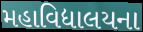
મહાવિદ્યાલયના